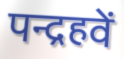
पन्द्रहवें